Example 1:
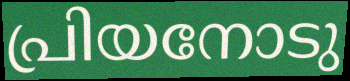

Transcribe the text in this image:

പ്രിയനോടു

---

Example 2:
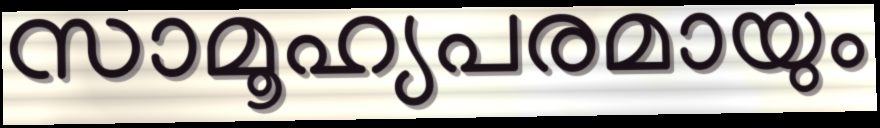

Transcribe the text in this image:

സാമൂഹ്യപരമായും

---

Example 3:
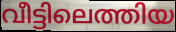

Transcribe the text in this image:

വീട്ടിലെത്തിയ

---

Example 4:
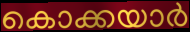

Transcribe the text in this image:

കൊക്കയാർ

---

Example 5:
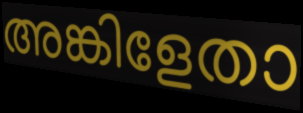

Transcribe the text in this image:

അങ്കിളേതാ